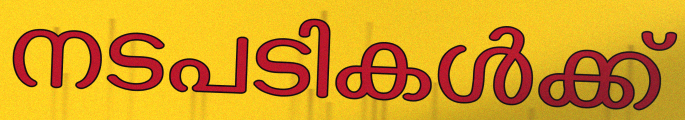
നടപടികൾക്ക്